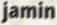
jamin